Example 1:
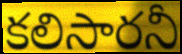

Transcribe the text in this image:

కలిసారనీ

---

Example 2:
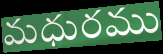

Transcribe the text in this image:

మధురము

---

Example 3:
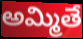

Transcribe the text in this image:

అమ్మితే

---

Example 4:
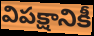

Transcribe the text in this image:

విపక్షానికీ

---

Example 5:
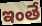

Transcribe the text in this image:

ఇంతే